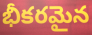
భీకరమైన